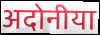
अदोनीया